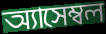
অ্যাসেম্বল